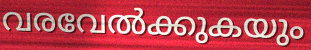
വരവേൽക്കുകയും